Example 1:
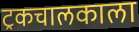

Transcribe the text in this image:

ट्रकचालकाला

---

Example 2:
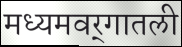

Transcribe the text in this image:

मध्यमवर्गातली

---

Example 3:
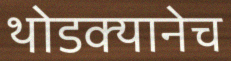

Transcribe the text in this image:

थोडक्यानेच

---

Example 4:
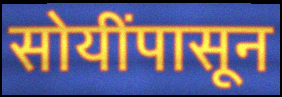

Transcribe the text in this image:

सोयींपासून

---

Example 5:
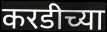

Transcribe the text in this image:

करडीच्या